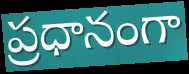
ప్రధానంగా